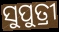
ସୁପୁତ୍ରୀ